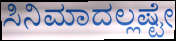
ಸಿನಿಮಾದಲ್ಲಷ್ಟೇ